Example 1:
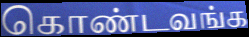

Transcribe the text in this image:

கொண்டவங்க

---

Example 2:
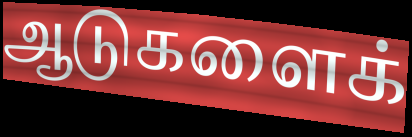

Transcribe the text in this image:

ஆடுகளைக்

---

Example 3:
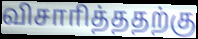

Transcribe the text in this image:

விசாரித்ததற்கு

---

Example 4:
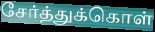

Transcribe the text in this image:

சேர்த்துக்கொள்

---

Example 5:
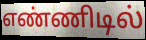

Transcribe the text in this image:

எண்ணிடில்